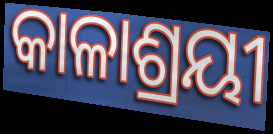
କାଳାଶ୍ରୟୀ